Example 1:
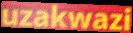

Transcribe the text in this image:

uzakwazi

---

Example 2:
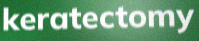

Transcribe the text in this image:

keratectomy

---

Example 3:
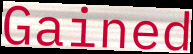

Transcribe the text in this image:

Gained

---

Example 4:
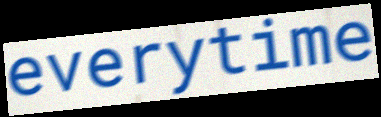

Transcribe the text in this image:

everytime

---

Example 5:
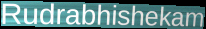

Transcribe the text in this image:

Rudrabhishekam